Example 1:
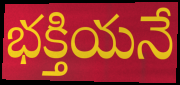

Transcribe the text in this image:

భక్తియనే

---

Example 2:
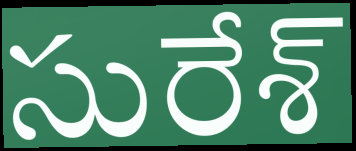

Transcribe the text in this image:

సురేశ్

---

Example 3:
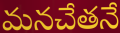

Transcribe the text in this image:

మనచేతనే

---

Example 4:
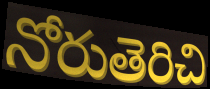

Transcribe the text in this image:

నోరుతెరిచి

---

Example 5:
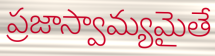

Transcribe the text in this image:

ప్రజాస్వామ్యమైతే